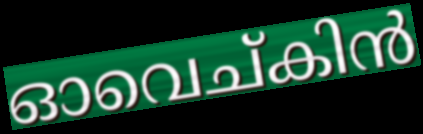
ഓവെച്കിൻ